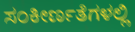
ಸಂಕೀರ್ಣತೆಗಳಲ್ಲಿ